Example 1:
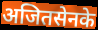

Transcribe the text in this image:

अजितसेनके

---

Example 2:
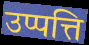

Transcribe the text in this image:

उप्पत्ति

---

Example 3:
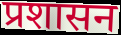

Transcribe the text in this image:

प्रशासन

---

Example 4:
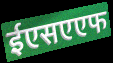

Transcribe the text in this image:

ईएसएएफ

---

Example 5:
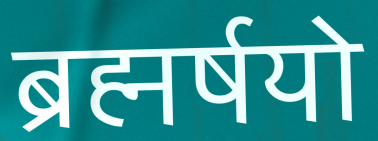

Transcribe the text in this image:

ब्रह्मर्षयो